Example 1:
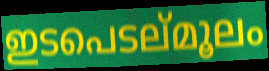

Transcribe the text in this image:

ഇടപെടല്മൂലം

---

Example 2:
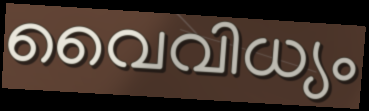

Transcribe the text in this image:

വൈവിധ്യം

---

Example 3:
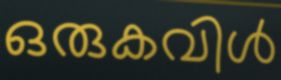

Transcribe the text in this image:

ഒരുകവിൾ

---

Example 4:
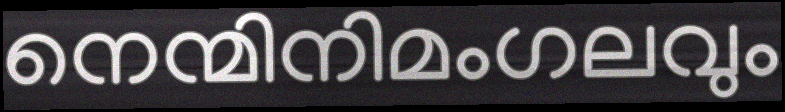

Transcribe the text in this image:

നെന്മിനിമംഗലവും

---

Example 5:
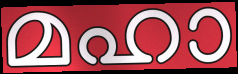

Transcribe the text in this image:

മഹാ